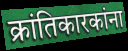
क्रांतिकारकांना